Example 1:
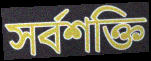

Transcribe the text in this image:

সর্বশক্তি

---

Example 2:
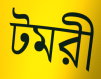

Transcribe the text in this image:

টমরী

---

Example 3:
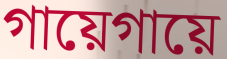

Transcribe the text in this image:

গায়েগায়ে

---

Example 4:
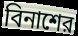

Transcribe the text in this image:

বিনাশের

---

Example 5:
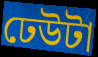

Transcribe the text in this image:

ঢেউটা